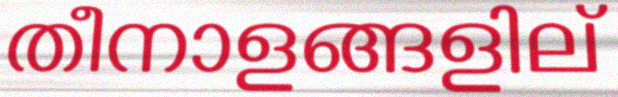
തീനാളങ്ങളില്